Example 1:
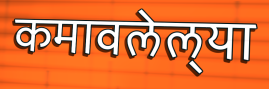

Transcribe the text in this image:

कमावलेल्या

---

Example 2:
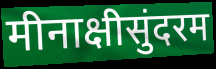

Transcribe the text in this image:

मीनाक्षीसुंदरम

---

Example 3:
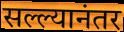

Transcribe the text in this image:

सल्ल्यानंतर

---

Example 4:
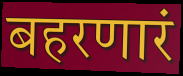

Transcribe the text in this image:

बहरणारं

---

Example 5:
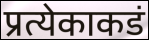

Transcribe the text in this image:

प्रत्येकाकडं